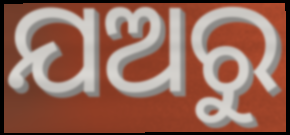
ଯଅରୁ